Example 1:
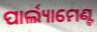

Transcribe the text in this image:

ପାର୍ଲ୍ୟାମେଣ୍ଟ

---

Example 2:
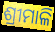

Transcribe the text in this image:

ଶ୍ରୀମାଳି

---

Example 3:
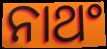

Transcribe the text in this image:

ନାଥଂ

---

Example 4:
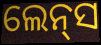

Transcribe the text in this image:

ଲେନ୍‌ସ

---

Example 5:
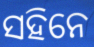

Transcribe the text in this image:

ସହିନେ